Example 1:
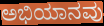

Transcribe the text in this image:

ಅಭಿಯಾನವು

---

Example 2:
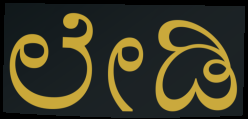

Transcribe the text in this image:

ಲೇಡಿ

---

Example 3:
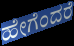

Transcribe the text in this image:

ಹೇಗೆಂದರೆ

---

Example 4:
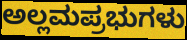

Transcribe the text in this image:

ಅಲ್ಲಮಪ್ರಭುಗಳು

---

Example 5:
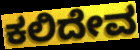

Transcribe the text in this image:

ಕಲಿದೇವ